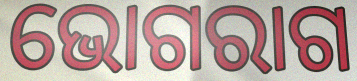
ଭୋଗରାଗ